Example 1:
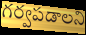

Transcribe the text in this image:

గర్వపడాలని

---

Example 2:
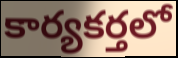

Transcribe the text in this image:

కార్యకర్తలో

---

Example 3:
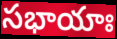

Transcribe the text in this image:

సభాయాః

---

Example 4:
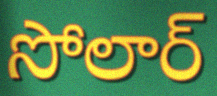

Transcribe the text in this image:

సోలార్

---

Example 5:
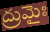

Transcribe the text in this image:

ద్రుమైః